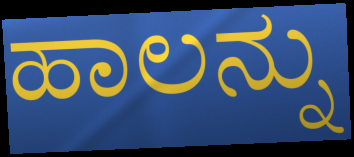
ಹಾಲನ್ನು